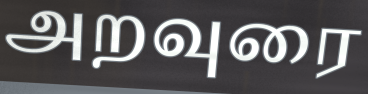
அறவுரை